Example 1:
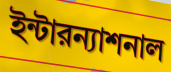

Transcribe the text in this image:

ইন্টারন্যাশনাল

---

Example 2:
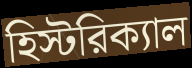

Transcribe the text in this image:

হিস্টরিক্যাল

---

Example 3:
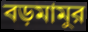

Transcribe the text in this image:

বড়মামুর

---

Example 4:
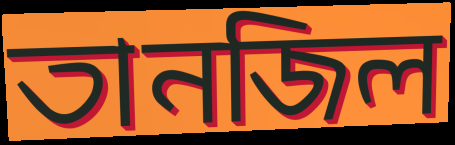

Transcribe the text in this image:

তানজিল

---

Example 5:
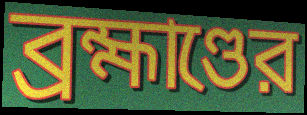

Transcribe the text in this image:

ব্রহ্মাণ্ডের